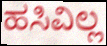
ಹಸಿವಿಲ್ಲ